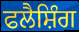
ਫਲੈਸ਼ਿੰਗ